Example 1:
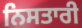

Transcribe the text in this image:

ਨਿਸਤਾਰੀ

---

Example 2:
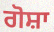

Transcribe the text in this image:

ਗੋਸ਼ਾ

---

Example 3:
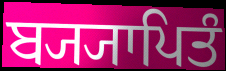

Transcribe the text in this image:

ਬ੍ਯ੍ਯਾਪਿਤੰ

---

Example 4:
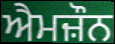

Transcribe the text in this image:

ਐਮਜ਼ੌਨ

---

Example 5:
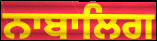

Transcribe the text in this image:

ਨਾਬਾਲਿਗ